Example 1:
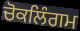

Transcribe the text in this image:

ਚੋਕਲਿੰਗਮ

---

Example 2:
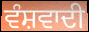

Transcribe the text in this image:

ਵੰਸ਼ਵਾਦੀ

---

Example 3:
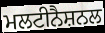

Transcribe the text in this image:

ਮਲਟੀਨੈਸ਼ਨਲ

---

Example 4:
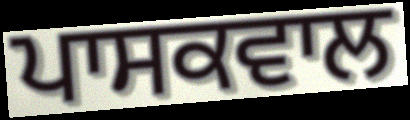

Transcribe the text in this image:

ਪਾਸਕਵਾਲ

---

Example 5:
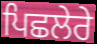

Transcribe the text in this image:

ਪਿਛਲੇਰੇ